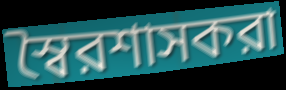
স্বৈরশাসকরা